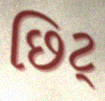
છિટ્